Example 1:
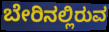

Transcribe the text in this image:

ಬೇರಿನಲ್ಲಿರುವ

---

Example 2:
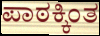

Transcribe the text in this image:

ಪಾಠಕ್ಕಿಂತ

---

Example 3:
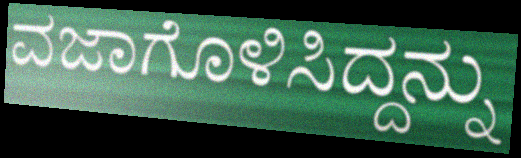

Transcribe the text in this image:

ವಜಾಗೊಳಿಸಿದ್ದನ್ನು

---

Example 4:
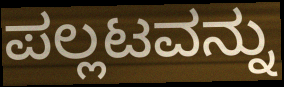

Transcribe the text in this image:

ಪಲ್ಲಟವನ್ನು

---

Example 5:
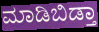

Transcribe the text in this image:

ಮಾಡಿಬಿಡ್ತಾ